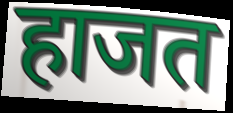
हाजत